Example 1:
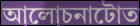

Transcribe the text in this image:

আলোচনাটোত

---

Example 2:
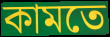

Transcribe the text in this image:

কামতে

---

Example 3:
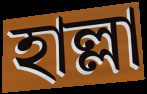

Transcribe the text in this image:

হাল্লা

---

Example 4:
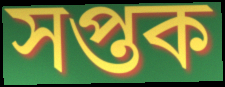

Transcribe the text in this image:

সপ্তক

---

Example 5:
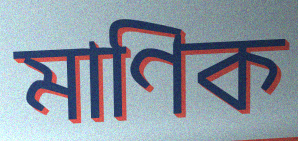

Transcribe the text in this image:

মাণিক